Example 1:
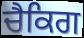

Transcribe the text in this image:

ਚੈਕਿਗ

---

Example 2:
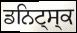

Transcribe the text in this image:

ਡਨਿਟ੍ਸ੍ਕ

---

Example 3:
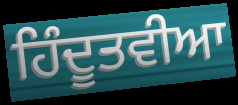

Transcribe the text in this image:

ਹਿੰਦੂਤਵੀਆ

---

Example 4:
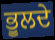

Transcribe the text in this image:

ਭੂਲਦੇ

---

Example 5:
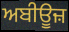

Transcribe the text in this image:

ਅਬੀਊਜ਼